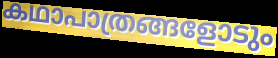
കഥാപാത്രങ്ങളോടും